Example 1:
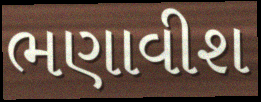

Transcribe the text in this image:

ભણાવીશ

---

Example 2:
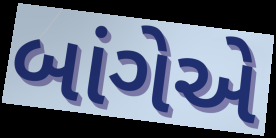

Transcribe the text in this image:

બાંગેએ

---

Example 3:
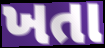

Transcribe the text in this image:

ખતા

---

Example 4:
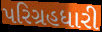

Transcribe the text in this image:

પરિગ્રહધારી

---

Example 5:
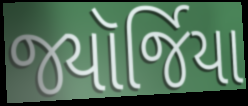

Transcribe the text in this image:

જ્યૉર્જિયા